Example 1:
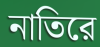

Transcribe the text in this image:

নাতিরে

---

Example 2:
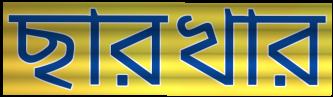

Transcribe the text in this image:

ছারখার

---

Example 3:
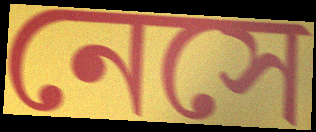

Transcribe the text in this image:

নেসে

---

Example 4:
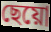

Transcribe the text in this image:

ছেয়ো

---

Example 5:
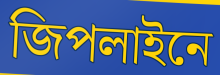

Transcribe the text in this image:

জিপলাইনে